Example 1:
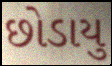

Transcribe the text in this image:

છોડાયુ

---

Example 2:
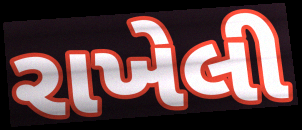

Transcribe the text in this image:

રાખેલી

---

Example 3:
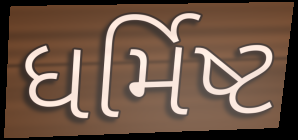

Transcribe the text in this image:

ધર્મિષ્ટ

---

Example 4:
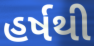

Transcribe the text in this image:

હર્ષથી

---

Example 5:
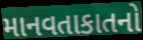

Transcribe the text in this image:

માનવતાકાતનો